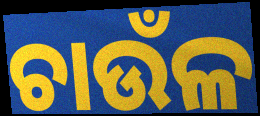
ଚାଉଁଳ